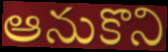
ఆనుకొని